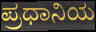
ಪ್ರಧಾನಿಯ